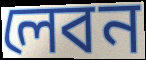
লেবন